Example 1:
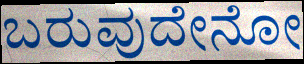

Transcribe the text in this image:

ಬರುವುದೇನೋ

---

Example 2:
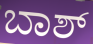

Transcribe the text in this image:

ಬಾಶ್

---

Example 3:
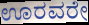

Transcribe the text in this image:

ಊರವರೇ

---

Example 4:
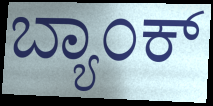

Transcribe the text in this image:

ಬ್ಯಾಂಕ್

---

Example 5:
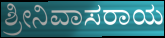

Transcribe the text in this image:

ಶ್ರೀನಿವಾಸರಾಯ